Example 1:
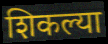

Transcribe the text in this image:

शिकल्या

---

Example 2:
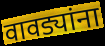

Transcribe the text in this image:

वावड्यांना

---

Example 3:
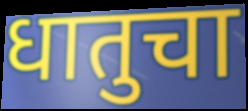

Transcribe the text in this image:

धातुचा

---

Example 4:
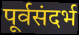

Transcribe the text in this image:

पूर्वसंदर्भ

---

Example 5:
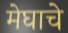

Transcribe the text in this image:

मेघाचे